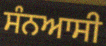
ਸੰਨਆਸੀ